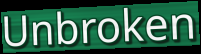
Unbroken